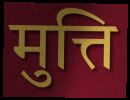
मुत्ति